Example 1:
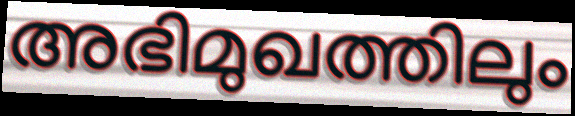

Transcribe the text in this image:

അഭിമുഖത്തിലും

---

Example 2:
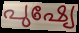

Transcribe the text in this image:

പുഷ്യേ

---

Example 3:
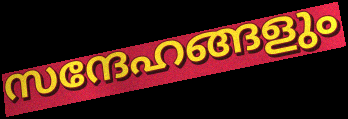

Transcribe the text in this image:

സന്ദേഹങ്ങളും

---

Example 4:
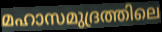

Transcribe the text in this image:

മഹാസമുദ്രത്തിലെ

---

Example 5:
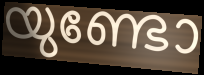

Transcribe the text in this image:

യുണ്ടോ